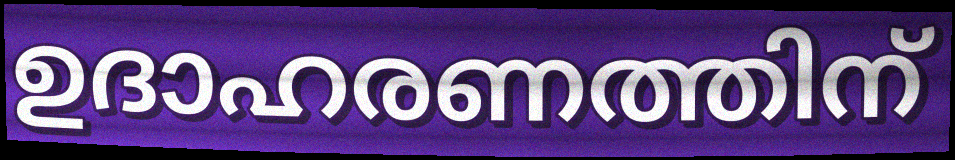
ഉദാഹരണത്തിന്